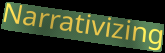
Narrativizing